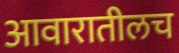
आवारातीलच